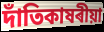
দাঁতিকাষৰীয়া